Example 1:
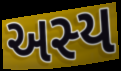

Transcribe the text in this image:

અસ્ય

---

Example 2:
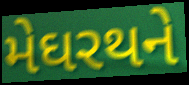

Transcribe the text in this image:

મેઘરથને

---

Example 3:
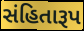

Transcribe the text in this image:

સંહિતારૂપ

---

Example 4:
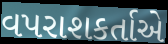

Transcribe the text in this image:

વપરાશકર્તાએ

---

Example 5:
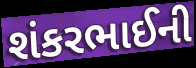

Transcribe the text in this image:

શંકરભાઈની